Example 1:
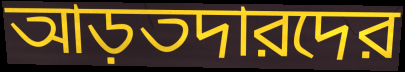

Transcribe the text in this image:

আড়তদারদের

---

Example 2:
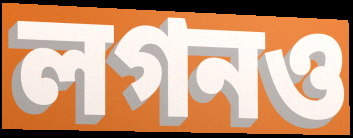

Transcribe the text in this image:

লগনও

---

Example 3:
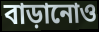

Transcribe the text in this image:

বাড়ানোও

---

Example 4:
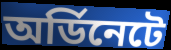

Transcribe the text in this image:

অর্ডিনেটে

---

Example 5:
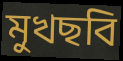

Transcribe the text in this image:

মুখছবি